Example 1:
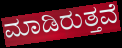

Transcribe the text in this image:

ಮಾಡಿರುತ್ತವೆ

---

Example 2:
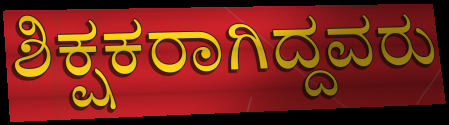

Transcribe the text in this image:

ಶಿಕ್ಷಕರಾಗಿದ್ದವರು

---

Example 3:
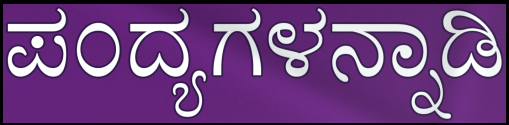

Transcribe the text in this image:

ಪಂದ್ಯಗಳನ್ನಾಡಿ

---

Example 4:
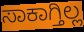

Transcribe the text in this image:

ಸಾಕಾಗ್ತಿಲ್ಲ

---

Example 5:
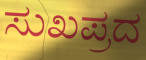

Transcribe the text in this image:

ಸುಖಪ್ರದ